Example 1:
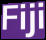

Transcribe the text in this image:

Fiji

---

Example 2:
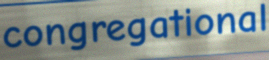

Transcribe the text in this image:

congregational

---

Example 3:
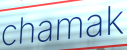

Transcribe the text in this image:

chamak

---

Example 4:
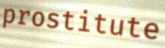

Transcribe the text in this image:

prostitute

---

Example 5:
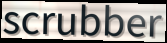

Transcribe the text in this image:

scrubber